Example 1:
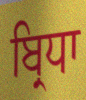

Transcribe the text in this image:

ਬ੍ਰਿਧਾ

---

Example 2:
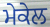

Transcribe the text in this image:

ਮੇਕੇਲ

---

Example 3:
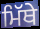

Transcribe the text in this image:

ਮਿੱਥੇ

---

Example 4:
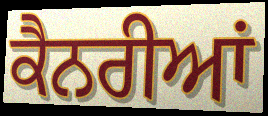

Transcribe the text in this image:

ਕੈਨਰੀਆਂ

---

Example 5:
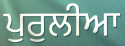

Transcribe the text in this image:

ਪੁਰੁਲੀਆ